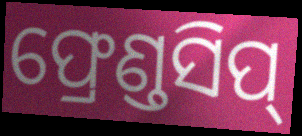
ଫ୍ରେଣ୍ଡସିପ୍